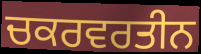
ਚਕਰਵਰਤੀਨ